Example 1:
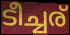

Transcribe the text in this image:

ടീച്ചര്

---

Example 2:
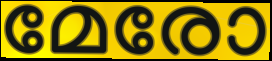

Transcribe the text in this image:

മേരോ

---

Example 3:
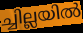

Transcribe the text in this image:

ച്ചില്ലയിൽ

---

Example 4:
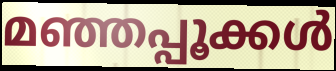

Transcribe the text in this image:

മഞ്ഞപ്പൂക്കൾ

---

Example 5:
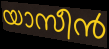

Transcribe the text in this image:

യാസീൻ